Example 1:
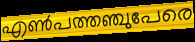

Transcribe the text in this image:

എൺപത്തഞ്ചുപേരെ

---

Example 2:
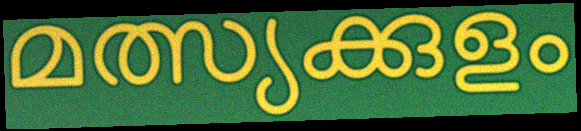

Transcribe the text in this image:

മത്സ്യക്കുളം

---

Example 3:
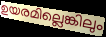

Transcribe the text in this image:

ഉയരമില്ലെങ്കിലും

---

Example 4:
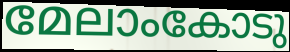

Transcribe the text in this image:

മേലാംകോടു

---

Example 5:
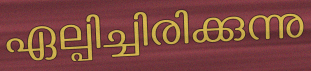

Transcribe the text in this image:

ഏല്പിച്ചിരിക്കുന്നു